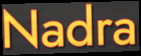
Nadra